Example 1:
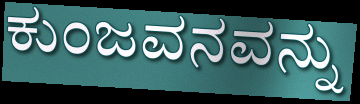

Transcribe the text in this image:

ಕುಂಜವನವನ್ನು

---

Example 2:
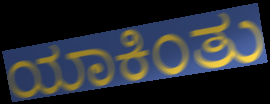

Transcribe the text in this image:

ಯಾಕಿಂತು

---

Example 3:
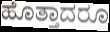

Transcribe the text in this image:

ಹೊತ್ತಾದರೂ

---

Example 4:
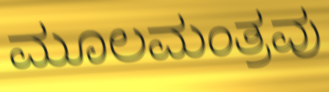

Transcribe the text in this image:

ಮೂಲಮಂತ್ರವು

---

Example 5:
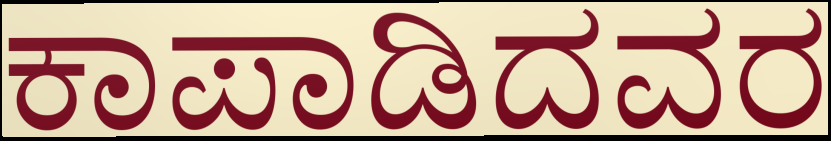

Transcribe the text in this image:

ಕಾಪಾಡಿದವರ